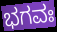
ಭಗವಃ